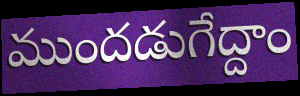
ముందడుగేద్దాం